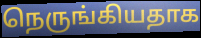
நெருங்கியதாக